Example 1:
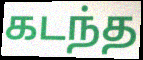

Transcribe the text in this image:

கடந்த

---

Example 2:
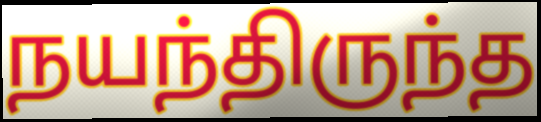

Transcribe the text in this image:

நயந்திருந்த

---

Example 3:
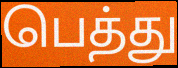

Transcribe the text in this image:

பெத்து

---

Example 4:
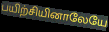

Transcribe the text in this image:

பயிற்சியினாலேயே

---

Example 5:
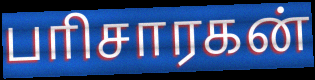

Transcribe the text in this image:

பரிசாரகன்